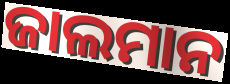
ଜାଲମାନ